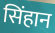
सिंहान